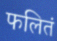
फलितं